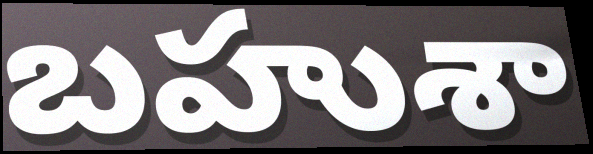
బహుశా